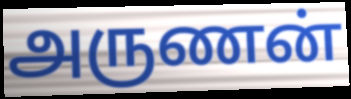
அருணன்